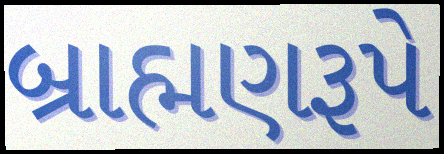
બ્રાહ્મણરૂપે